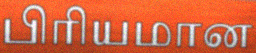
பிரியமான